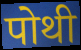
पोथी